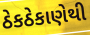
ઠેકઠેકાણેથી